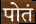
पोतं